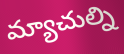
మ్యాచుల్ని